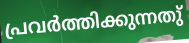
പ്രവർത്തിക്കുന്നതു്